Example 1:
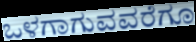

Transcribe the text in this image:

ಒಳಗಾಗುವವರೆಗೂ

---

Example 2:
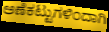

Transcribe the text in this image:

ಅಣೆಕಟ್ಟುಗಳಿಂದಾಗಿ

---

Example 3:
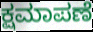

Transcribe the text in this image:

ಕ್ಷಮಾಪಣೆ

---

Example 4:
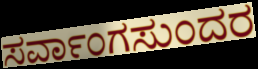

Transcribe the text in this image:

ಸರ್ವಾಂಗಸುಂದರ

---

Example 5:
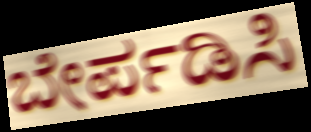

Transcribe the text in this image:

ಬೇರ್ಪಡಿಸಿ